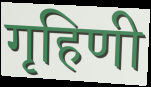
गृहिणी